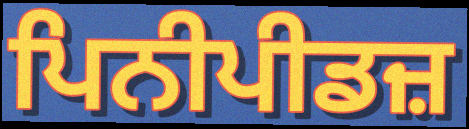
ਪਿਨੀਪੀਡਜ਼